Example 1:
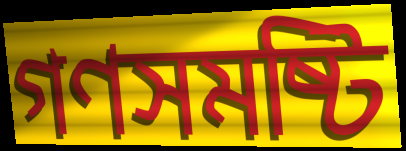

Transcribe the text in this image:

গণসমষ্টি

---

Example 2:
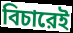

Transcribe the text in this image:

বিচারেই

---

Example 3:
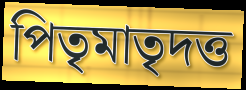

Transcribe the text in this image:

পিতৃমাতৃদত্ত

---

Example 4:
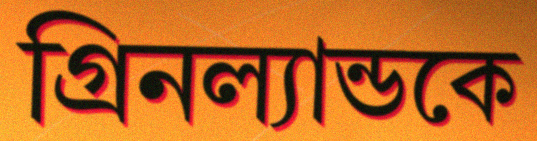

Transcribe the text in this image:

গ্রিনল্যান্ডকে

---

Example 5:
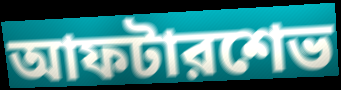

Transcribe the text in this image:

আফটারশেভ